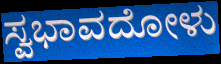
ಸ್ವಭಾವದೋಳು